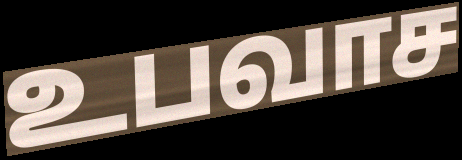
உபவாச